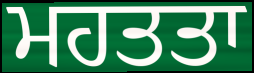
ਮਹਤਤਾ